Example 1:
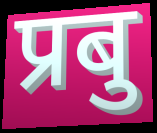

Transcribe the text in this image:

प्रबु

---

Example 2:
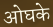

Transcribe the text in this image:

ओघके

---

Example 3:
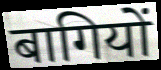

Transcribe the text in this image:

बागियों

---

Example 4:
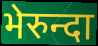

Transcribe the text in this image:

भेरुन्दा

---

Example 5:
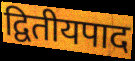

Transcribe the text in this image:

द्वितीयपाद